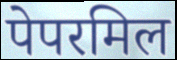
पेपरमिल